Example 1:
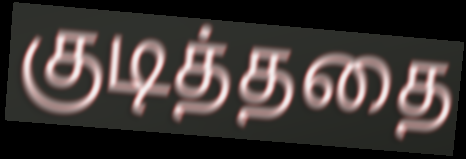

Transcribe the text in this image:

குடித்ததை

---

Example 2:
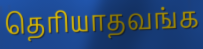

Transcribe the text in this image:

தெரியாதவங்க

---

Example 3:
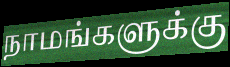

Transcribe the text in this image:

நாமங்களுக்கு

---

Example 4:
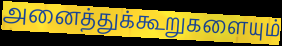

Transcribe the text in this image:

அனைத்துக்கூறுகளையும்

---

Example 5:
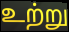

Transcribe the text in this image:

உற்று